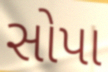
સોપા